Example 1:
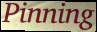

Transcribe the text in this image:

Pinning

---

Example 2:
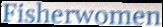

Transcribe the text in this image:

Fisherwomen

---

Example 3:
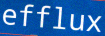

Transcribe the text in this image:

efflux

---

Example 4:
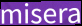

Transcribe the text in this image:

misera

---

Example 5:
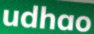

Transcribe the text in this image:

udhao